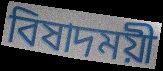
বিষাদময়ী